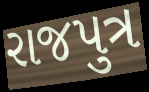
રાજપુત્ર